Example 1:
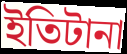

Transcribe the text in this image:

ইতিটানা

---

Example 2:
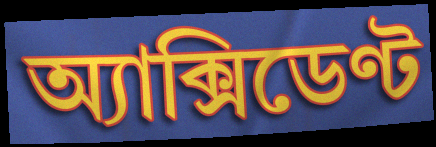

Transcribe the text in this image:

অ্যাক্সিডেণ্ট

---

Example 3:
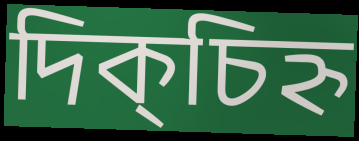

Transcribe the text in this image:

দিক্‌চিহ্ন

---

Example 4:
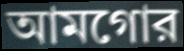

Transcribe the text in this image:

আমগোর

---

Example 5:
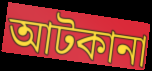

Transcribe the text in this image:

আটকানা